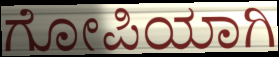
ಗೋಪಿಯಾಗಿ